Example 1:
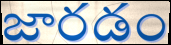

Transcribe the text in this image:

జారడం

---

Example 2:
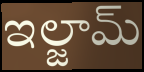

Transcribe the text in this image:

ఇల్జామ్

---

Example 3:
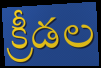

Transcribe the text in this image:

క్రీడల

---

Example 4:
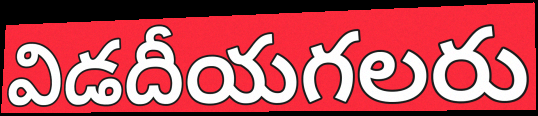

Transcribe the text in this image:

విడదీయగలరు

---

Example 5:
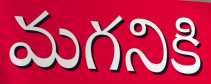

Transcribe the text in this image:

మగనికి